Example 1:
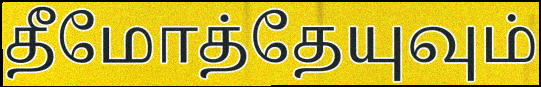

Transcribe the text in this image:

தீமோத்தேயுவும்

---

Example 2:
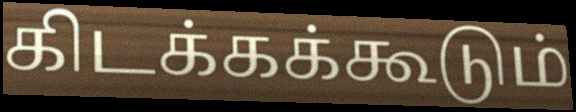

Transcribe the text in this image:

கிடக்கக்கூடும்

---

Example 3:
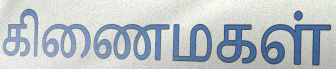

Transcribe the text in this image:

கிணைமகள்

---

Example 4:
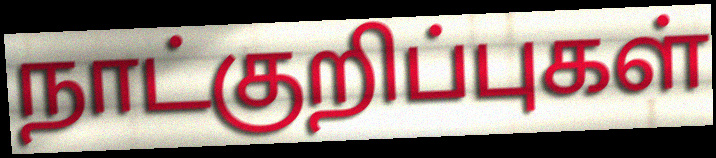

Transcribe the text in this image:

நாட்குறிப்புகள்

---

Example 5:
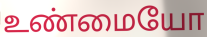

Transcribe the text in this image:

உண்மையோ